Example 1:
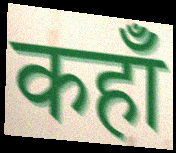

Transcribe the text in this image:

कहॉँ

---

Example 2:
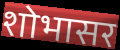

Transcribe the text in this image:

शोभासर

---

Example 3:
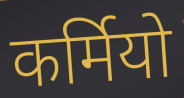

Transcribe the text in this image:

कर्मियो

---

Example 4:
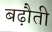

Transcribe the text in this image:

बढ़ौती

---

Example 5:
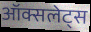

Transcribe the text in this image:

ऑक्सलेट्स